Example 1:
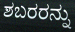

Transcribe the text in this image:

ಶಬರರನ್ನು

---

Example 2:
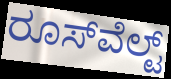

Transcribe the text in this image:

ರೂಸ್‌ವೆಲ್ಟ್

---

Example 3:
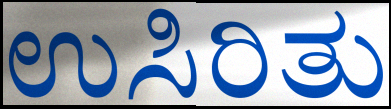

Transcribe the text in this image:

ಉಸಿರಿತು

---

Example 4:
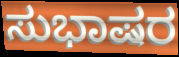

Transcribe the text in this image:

ಸುಭಾಷರ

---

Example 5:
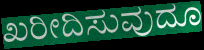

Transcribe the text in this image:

ಖರೀದಿಸುವುದೂ